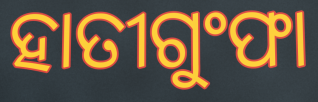
ହାତୀଗୁଂଫା